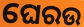
ଘେରଉ